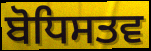
ਬੋਧਿਸਤਵ